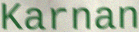
Karnan